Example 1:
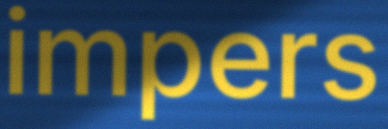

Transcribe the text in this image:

impers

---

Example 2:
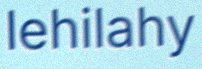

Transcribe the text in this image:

lehilahy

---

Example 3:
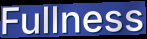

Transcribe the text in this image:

Fullness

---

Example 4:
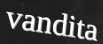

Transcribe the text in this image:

vandita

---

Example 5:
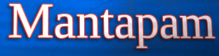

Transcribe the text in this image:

Mantapam